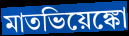
মাতভিয়েঙ্কো